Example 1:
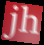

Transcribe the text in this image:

jh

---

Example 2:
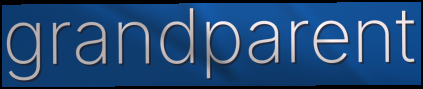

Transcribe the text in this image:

grandparent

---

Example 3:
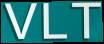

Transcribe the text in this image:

VLT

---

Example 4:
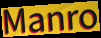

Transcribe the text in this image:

Manro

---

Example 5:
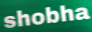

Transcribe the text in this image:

shobha